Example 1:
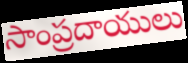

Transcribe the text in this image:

సాంప్రదాయులు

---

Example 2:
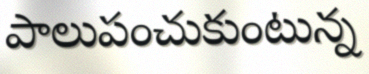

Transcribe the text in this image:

పాలుపంచుకుంటున్న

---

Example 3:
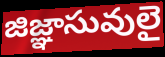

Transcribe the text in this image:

జిజ్ఞాసువులై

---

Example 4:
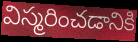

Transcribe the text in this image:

విస్మరించడానికి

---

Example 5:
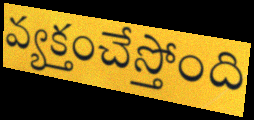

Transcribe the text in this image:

వ్యక్తంచేస్తోంది